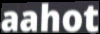
aahot